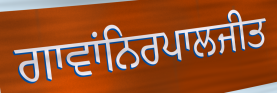
ਗਾਵਾਂਨਿਰਪਾਲਜੀਤ